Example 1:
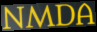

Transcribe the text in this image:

NMDA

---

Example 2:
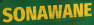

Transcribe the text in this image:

SONAWANE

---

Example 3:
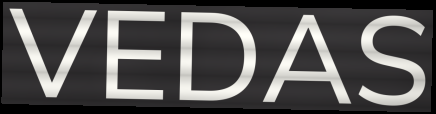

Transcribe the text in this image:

VEDAS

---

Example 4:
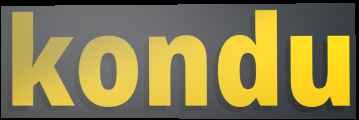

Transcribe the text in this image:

kondu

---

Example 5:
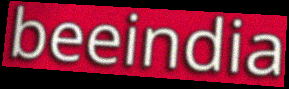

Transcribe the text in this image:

beeindia